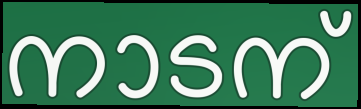
നാടന്